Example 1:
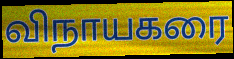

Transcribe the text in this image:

விநாயகரை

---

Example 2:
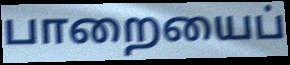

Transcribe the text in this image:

பாறையைப்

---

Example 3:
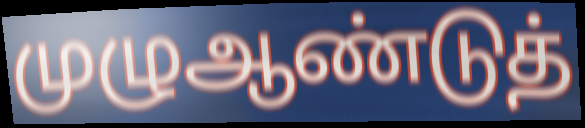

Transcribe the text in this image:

முழுஆண்டுத்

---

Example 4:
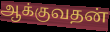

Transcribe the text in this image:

ஆக்குவதன்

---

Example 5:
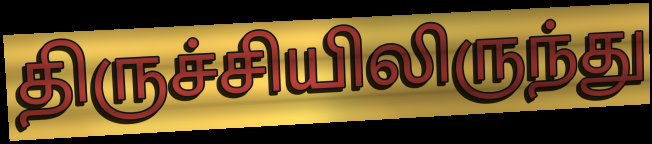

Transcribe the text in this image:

திருச்சியிலிருந்து